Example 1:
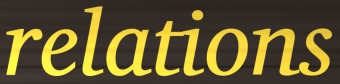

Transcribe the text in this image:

relations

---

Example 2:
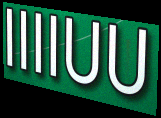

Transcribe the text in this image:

IIIIUU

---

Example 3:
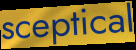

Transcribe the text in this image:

sceptical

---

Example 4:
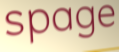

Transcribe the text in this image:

spage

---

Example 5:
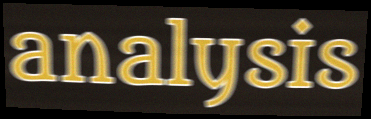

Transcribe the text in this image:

analysis